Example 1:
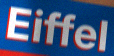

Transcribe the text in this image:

Eiffel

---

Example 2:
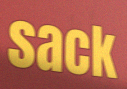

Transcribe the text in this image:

sack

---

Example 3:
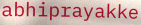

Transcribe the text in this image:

abhiprayakke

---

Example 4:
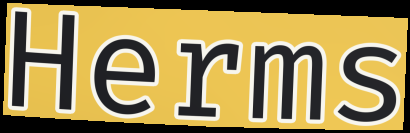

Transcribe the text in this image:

Herms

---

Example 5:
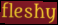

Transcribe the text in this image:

fleshy